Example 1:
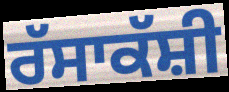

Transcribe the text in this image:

ਰੱਸਾਕੱਸ਼ੀ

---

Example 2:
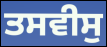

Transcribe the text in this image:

ਤਸਵੀਸੁ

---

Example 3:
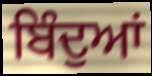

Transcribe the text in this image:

ਬਿੰਦੁਆਂ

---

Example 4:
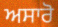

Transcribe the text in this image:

ਅਸਾਰੋ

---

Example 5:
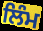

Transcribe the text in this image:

ਲਿੰਮ